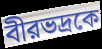
বীরভদ্রকে